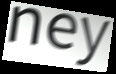
ney